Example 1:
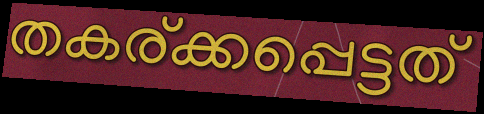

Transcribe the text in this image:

തകര്ക്കപ്പെട്ടത്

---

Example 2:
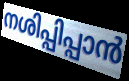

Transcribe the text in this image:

നശിപ്പിപ്പാൻ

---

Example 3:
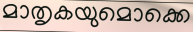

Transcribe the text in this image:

മാതൃകയുമൊക്കെ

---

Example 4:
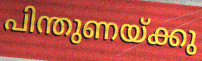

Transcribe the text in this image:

പിന്തുണയ്ക്കു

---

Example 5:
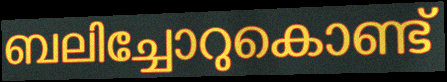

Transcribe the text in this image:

ബലിച്ചോറുകൊണ്ട്